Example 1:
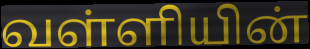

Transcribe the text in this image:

வள்ளியின்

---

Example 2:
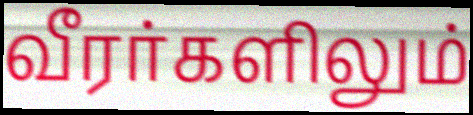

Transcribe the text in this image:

வீரர்களிலும்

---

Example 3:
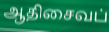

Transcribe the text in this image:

ஆதிசைவப்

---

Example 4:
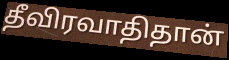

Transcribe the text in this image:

தீவிரவாதிதான்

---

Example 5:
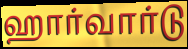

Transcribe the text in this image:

ஹார்வார்டு